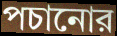
পচানোর